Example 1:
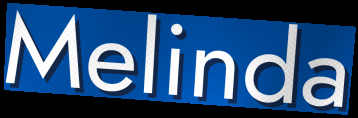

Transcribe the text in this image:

Melinda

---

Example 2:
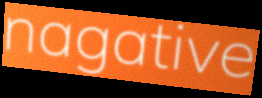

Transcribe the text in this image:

nagative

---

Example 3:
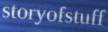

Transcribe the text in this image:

storyofstuff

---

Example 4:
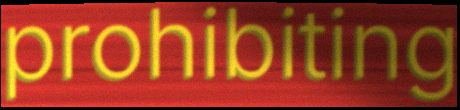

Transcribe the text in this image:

prohibiting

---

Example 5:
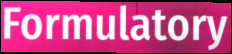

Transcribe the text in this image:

Formulatory